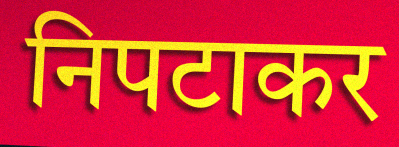
निपटाकर